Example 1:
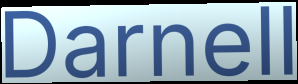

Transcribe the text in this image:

Darnell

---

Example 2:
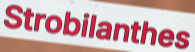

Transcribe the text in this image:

Strobilanthes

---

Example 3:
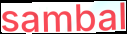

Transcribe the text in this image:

sambal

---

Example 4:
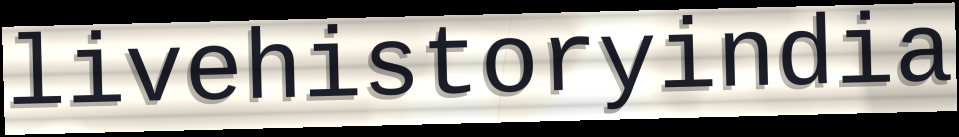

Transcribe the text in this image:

livehistoryindia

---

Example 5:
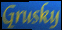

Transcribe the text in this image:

Grusky